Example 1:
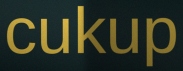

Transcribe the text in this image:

cukup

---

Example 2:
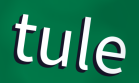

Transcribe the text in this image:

tule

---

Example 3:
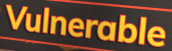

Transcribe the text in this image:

Vulnerable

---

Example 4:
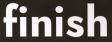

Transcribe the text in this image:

finish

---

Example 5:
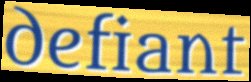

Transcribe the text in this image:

defiant